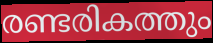
രണ്ടരികത്തും